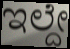
ಇಲ್ದೇ